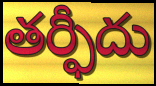
తర్ఫీదు